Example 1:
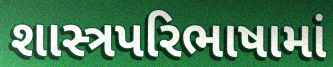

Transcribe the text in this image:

શાસ્ત્રપરિભાષામાં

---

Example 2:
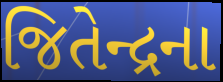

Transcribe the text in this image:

જિતેન્દ્રના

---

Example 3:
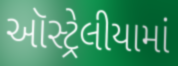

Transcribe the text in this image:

ઑસ્ટ્રેલીયામાં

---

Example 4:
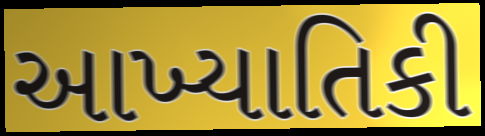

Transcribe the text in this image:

આખ્યાતિકી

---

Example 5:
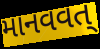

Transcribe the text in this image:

માનવવત્